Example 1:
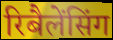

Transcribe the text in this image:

रिबैलेंसिंग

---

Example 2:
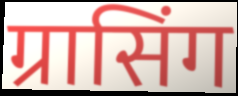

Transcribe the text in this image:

ग्रासिंग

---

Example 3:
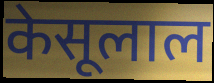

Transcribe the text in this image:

केसूलाल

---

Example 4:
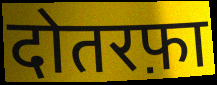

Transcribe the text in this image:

दोतरफ़ा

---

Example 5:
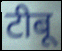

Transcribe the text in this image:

टीबू